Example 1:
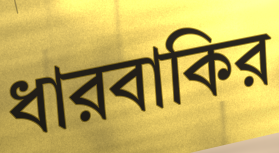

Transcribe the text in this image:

ধারবাকির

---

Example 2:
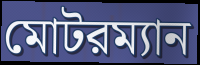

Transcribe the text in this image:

মোটরম্যান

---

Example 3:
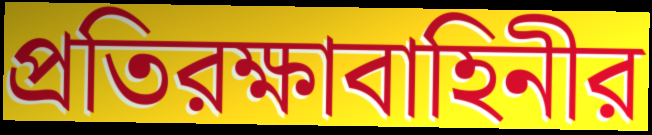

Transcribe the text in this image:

প্রতিরক্ষাবাহিনীর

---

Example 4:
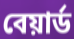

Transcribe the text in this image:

বেয়ার্ড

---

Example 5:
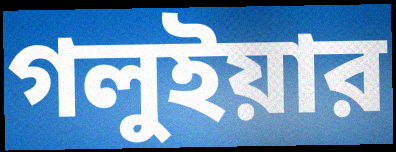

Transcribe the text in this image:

গলুইয়ার